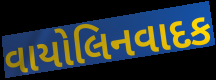
વાયોલિનવાદક